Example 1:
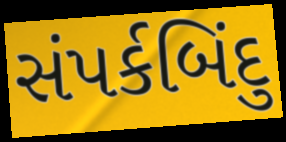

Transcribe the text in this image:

સંપર્કબિંદુ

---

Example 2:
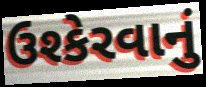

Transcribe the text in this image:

ઉશ્કેરવાનું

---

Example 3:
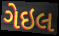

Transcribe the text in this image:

ગેઇલ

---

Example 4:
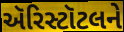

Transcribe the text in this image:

ઍરિસ્ટૉટલને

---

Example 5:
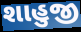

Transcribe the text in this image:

શાહુજી